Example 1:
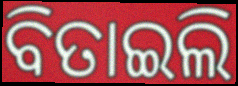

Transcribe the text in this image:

ବିତାଇଲି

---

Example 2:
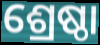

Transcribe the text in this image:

ଶ୍ରେଷ୍ଠା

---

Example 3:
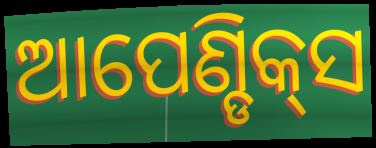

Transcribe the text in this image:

ଆପେଣ୍ଡିକ୍‌ସ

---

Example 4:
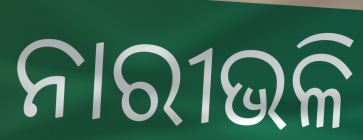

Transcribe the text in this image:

ନାରୀଭଳି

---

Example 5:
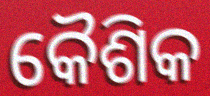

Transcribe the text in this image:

କୈଶିକ